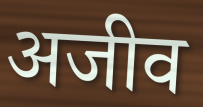
अजीव